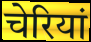
चेरियां